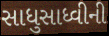
સાધુસાધ્વીની